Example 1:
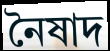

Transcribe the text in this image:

নৈষাদ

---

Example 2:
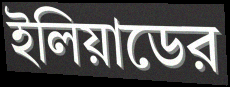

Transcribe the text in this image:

ইলিয়াডের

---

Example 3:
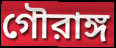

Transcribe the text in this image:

গৌরাঙ্গ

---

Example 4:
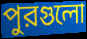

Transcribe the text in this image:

পুরগুলো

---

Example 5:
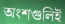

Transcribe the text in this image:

অংশগুলিই